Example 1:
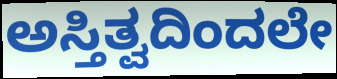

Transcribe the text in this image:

ಅಸ್ತಿತ್ವದಿಂದಲೇ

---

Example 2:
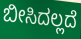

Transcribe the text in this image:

ಬೀಸಿದಲ್ಲದೆ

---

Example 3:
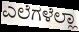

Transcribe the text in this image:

ಎಲೆಗಳೆಲ್ಲಾ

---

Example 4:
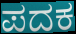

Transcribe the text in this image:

ಪದಕ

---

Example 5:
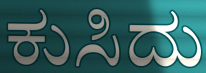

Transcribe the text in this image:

ಕುಸಿದು